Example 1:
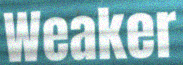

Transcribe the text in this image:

Weaker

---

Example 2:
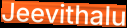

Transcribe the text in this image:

Jeevithalu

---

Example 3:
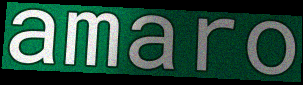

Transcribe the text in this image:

amaro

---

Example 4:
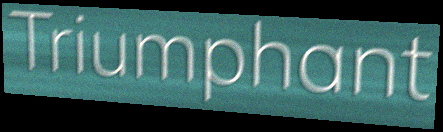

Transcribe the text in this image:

Triumphant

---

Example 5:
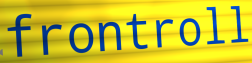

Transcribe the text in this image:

frontroll